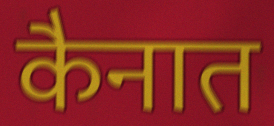
कैनात